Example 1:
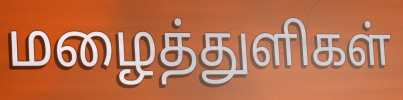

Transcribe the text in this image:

மழைத்துளிகள்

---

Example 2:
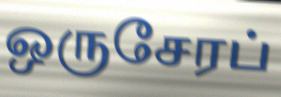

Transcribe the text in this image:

ஒருசேரப்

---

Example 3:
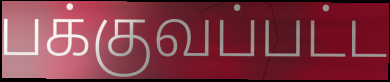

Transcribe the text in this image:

பக்குவப்பட்ட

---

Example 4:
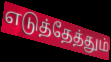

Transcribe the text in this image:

எடுத்தேத்தும்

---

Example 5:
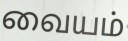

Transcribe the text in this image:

வையம்